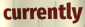
currently